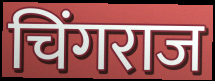
चिंगराज